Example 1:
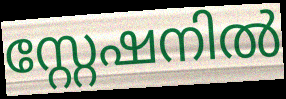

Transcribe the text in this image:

സ്റ്റേഷനിൽ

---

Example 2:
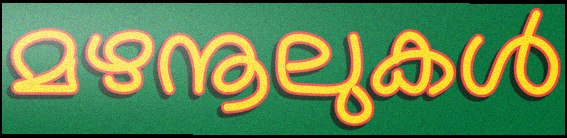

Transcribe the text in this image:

മഴനൂലുകൾ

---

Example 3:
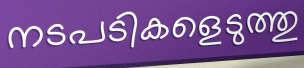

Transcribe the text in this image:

നടപടികളെടുത്തു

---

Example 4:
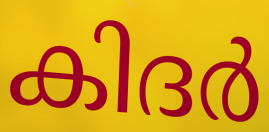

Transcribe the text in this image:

കിദർ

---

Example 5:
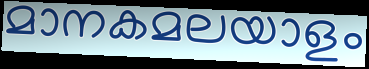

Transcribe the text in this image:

മാനകമലയാളം